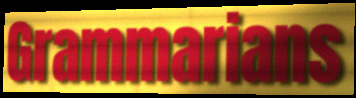
Grammarians